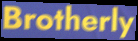
Brotherly